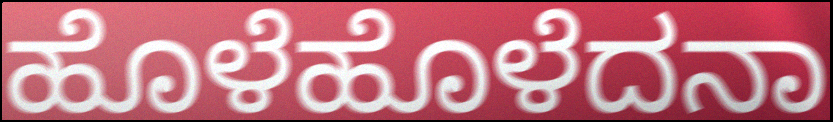
ಹೊಳೆಹೊಳೆದನಾ